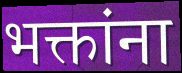
भक्तांना